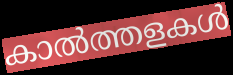
കാൽത്തളകൾ